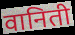
वानिती